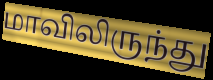
மாவிலிருந்து